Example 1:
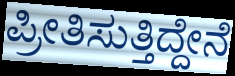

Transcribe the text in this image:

ಪ್ರೀತಿಸುತ್ತಿದ್ದೇನೆ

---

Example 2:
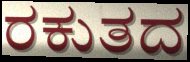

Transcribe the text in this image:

ರಕುತದ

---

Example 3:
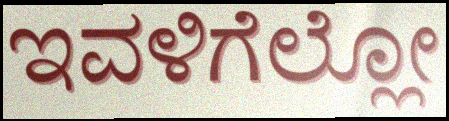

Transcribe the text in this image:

ಇವಳಿಗೆಲ್ಲೋ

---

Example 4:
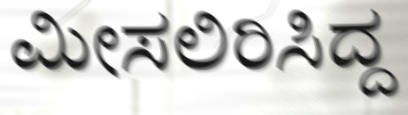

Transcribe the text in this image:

ಮೀಸಲಿರಿಸಿದ್ದ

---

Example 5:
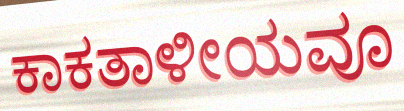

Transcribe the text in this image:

ಕಾಕತಾಳೀಯವೂ